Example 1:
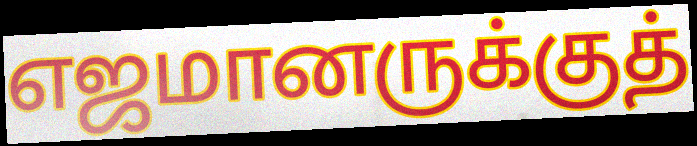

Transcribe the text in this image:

எஜமானருக்குத்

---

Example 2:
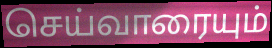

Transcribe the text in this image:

செய்வாரையும்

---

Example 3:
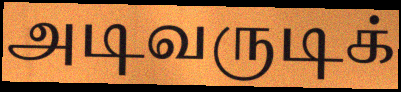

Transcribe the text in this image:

அடிவருடிக்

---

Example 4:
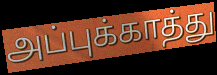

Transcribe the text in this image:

அப்புக்காத்து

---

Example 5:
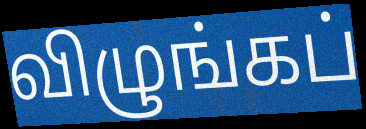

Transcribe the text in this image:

விழுங்கப்